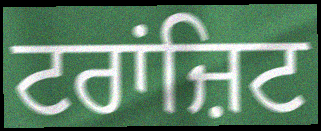
ਟਰਾਂਜ਼ਿਟ